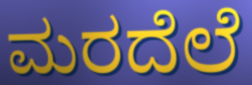
ಮರದೆಲೆ